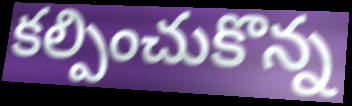
కల్పించుకొన్న